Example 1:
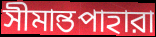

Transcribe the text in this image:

সীমান্তপাহারা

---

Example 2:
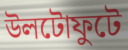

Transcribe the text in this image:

উলটোফুটে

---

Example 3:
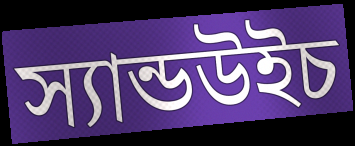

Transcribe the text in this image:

স্যান্ডউইচ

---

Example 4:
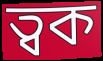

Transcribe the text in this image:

ত্বক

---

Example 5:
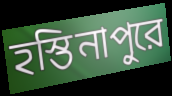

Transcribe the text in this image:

হস্তিনাপুরে